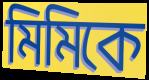
মিমিকে